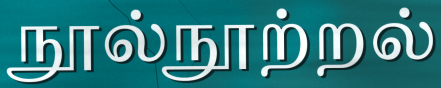
நூல்நூற்றல்